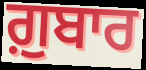
ਗ਼ੁਬਾਰ